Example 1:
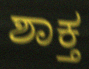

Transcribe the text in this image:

ಶಾಕ್ತ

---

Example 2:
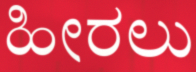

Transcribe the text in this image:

ಹೀರಲು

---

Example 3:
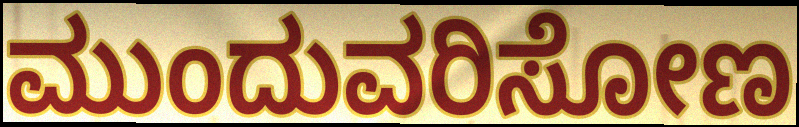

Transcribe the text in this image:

ಮುಂದುವರಿಸೋಣ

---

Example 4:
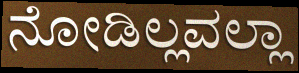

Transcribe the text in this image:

ನೋಡಿಲ್ಲವಲ್ಲಾ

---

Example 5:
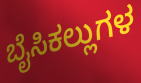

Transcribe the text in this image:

ಬೈಸಿಕಲ್ಲುಗಳ